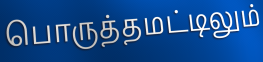
பொருத்தமட்டிலும்